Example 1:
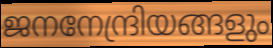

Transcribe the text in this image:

ജനനേന്ദ്രിയങ്ങളും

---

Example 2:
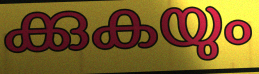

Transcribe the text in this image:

ക്കുകയും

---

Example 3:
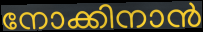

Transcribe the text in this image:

നോക്കിനാൻ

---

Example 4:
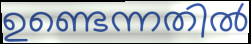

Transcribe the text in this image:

ഉണ്ടെന്നതിൽ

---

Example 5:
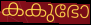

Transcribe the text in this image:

കകുഭോ